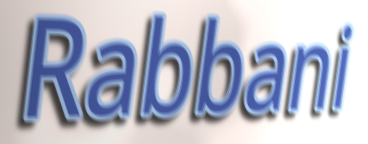
Rabbani